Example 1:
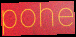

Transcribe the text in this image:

pohe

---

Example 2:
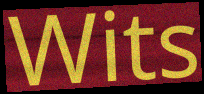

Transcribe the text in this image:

Wits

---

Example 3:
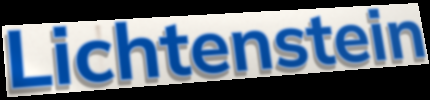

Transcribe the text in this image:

Lichtenstein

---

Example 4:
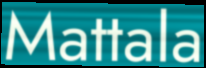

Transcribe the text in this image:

Mattala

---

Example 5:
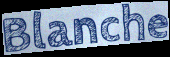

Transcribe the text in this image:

Blanche